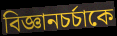
বিজ্ঞানচর্চাকে